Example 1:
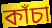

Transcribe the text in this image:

কাঁচা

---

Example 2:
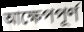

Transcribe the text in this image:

আক্ষেপপূর্ণ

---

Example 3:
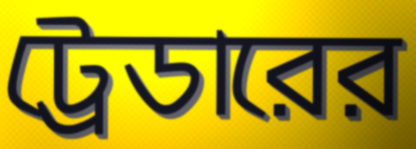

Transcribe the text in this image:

ট্রেডারের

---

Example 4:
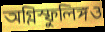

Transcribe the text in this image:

অগ্নিস্ফুলিঙ্গও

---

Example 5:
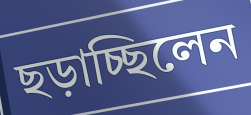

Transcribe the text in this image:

ছড়াচ্ছিলেন